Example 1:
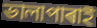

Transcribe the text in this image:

ভালাপাৰাই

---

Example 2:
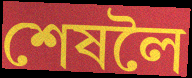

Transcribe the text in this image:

শেষলৈ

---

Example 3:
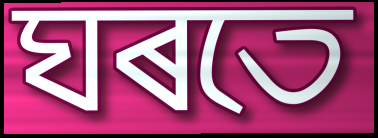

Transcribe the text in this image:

ঘৰতে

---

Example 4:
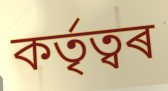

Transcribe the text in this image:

কৰ্তৃত্বৰ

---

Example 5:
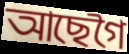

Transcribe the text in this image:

আছেগৈ